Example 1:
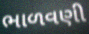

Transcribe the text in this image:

ભાળવણી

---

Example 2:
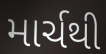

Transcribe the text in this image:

માર્ચથી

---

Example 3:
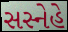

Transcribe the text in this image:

સસ્નેહે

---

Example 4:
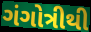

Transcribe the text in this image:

ગંગોત્રીથી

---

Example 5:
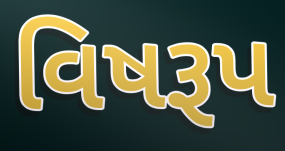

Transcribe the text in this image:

વિષરૂપ